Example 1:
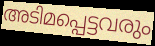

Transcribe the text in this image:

അടിമപ്പെട്ടവരും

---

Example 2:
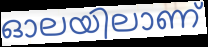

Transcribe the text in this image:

ഓലയിലാണ്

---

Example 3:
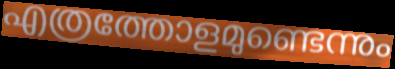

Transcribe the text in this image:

എത്രത്തോളമുണ്ടെന്നും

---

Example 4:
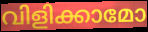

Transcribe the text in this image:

വിളിക്കാമോ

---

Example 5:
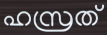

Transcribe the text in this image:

ഹസ്രത്